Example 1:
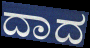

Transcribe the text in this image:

ದಾದ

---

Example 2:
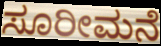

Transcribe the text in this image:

ಸೂರೀಮನೆ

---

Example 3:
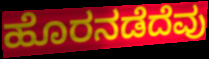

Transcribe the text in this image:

ಹೊರನಡೆದೆವು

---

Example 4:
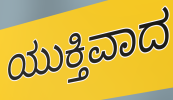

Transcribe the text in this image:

ಯುಕ್ತಿವಾದ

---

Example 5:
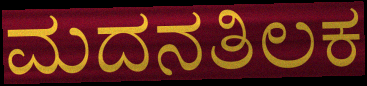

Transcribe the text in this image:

ಮದನತಿಲಕ